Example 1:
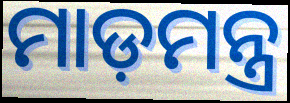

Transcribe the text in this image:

ମାଡ଼ମନ୍ତ୍ର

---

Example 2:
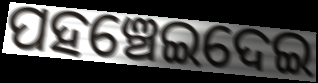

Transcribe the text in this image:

ପହଞ୍ଚେଇଦେଇ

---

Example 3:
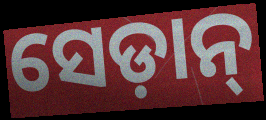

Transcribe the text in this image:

ସେଡ଼ାନ୍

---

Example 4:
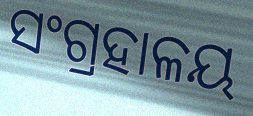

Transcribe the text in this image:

ସଂଗ୍ରହାଳୟ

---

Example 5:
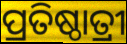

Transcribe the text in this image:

ପ୍ରତିଷ୍ଠାତ୍ରୀ